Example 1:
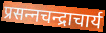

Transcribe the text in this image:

प्रसन्नचन्द्राचार्य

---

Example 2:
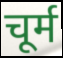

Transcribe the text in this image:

चूर्म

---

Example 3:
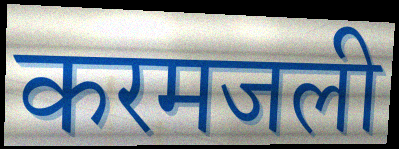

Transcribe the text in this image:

करमजली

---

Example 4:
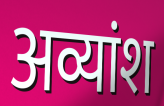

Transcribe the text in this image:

अव्यांश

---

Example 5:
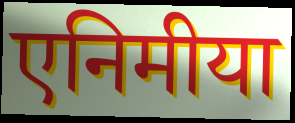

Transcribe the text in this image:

एनिमीया